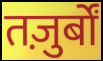
तज़ुर्बों